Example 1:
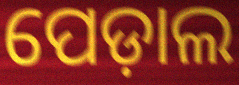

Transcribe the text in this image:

ପେଡ଼ାଲ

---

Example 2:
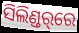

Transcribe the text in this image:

ସିଲିଣ୍ଡର୍‌ରେ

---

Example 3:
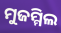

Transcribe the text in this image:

ମୁଜମ୍ମିଲ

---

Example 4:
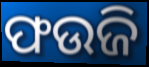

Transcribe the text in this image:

ଫଉଜି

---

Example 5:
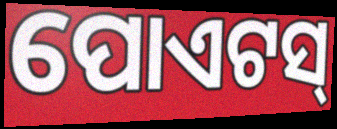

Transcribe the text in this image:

ପୋଏଟସ୍